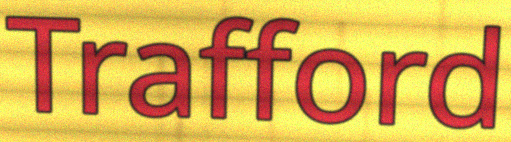
Trafford